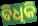
ବିଧିକି